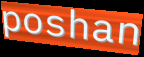
poshan